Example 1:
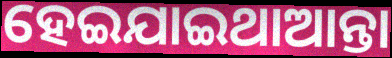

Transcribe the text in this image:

ହେଇଯାଇଥାଆନ୍ତା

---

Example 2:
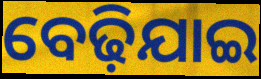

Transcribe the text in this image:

ବେଢ଼ିଯାଇ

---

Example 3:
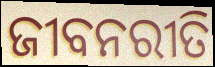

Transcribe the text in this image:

ଜୀବନରୀତି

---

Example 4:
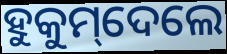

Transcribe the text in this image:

ହୁକୁମ୍‌ଦେଲେ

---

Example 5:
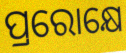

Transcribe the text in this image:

ପ୍ରରୋକ୍ଷେ